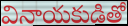
వినాయకుడితో